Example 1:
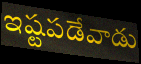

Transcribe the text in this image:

ఇష్టపడేవాడు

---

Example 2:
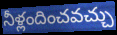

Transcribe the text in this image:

నీళ్లందించవచ్చు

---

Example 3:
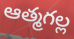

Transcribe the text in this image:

ఆత్మగల్ల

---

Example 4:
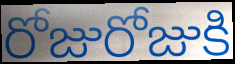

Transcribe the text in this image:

రోజురోజుకి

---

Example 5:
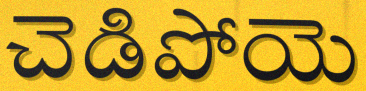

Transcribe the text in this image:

చెడిపోయె